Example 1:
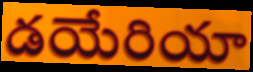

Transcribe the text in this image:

డయేరియా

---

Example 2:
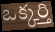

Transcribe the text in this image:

ఒక్కర్తి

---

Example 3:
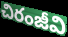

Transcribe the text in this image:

చిరంజీవి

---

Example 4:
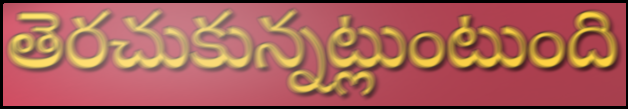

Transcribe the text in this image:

తెరచుకున్నట్లుంటుంది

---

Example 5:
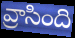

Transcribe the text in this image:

వ్రాసింది